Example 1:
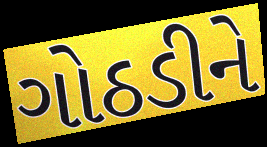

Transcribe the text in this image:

ગોઠડીને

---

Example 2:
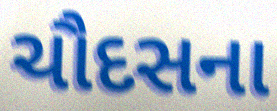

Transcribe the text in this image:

ચૌદસના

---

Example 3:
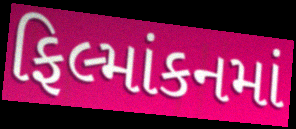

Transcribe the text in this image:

ફિલ્માંકનમાં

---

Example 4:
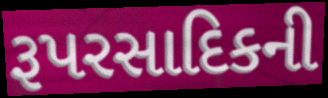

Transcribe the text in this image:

રૂપરસાદિકની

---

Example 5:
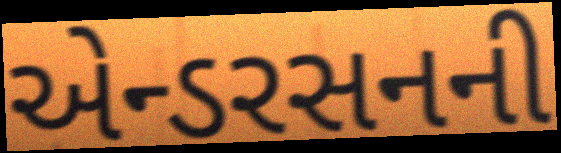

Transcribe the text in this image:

એન્ડરસનની